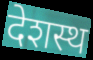
देशस्थ